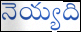
నెయ్యది